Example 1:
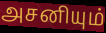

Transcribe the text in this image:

அசனியும்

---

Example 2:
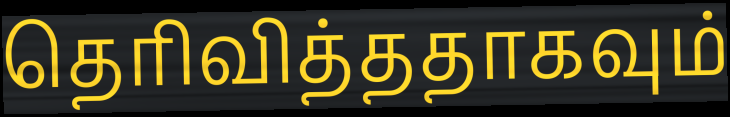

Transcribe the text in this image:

தெரிவித்ததாகவும்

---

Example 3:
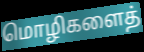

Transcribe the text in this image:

மொழிகளைத்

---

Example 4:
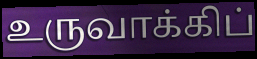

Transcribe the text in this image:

உருவாக்கிப்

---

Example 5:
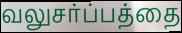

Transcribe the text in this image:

வலுசர்ப்பத்தை